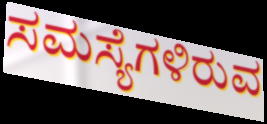
ಸಮಸ್ಯೆಗಳಿರುವ